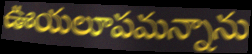
ఊయలూపమన్నాను